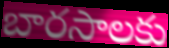
బారసాలకు